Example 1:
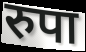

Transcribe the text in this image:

रुपा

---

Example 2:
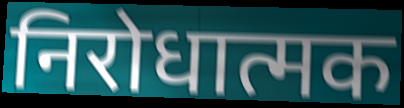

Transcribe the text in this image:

निरोधात्मक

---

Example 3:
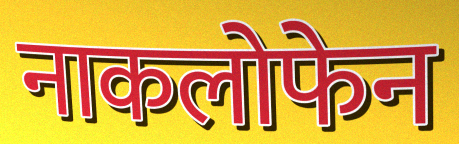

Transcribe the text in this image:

नाकलोफेन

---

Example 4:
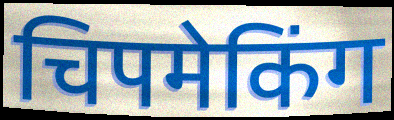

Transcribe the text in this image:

चिपमेकिंग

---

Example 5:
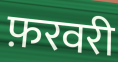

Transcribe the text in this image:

फ़रवरी